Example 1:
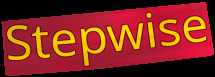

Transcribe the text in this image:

Stepwise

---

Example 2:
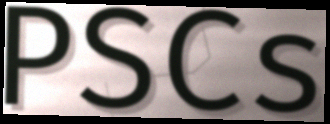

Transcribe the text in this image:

PSCs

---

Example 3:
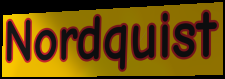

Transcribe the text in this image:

Nordquist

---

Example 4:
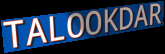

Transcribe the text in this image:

TALOOKDAR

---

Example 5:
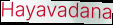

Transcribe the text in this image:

Hayavadana